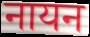
नायन